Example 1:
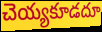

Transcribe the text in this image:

చెయ్యకూడదూ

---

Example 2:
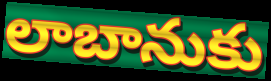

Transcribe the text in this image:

లాబానుకు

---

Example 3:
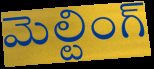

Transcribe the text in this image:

మెల్టింగ్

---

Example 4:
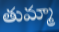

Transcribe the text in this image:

తుమ్మా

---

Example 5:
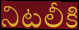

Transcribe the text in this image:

నిటలీకి